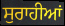
ਸੁਰਾਹੀਆਂ